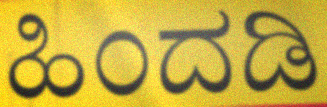
ಹಿಂದಡಿ